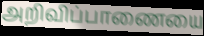
அறிவிப்பாணையை